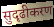
सुदृढीकरण